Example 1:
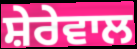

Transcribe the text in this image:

ਸ਼ੇਰੇਵਾਲ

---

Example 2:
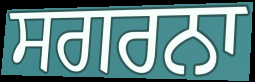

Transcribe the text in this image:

ਸਗਰਨਾ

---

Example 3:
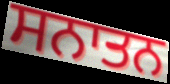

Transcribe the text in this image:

ਸਨਾਤਨ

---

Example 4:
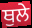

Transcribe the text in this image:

ਥੁਲੇ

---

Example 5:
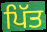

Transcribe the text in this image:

ਪਿੱਤ